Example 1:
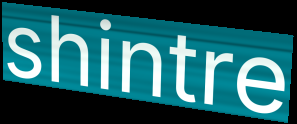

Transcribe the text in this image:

shintre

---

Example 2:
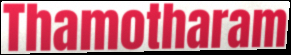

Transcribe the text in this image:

Thamotharam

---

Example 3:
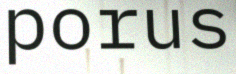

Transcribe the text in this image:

porus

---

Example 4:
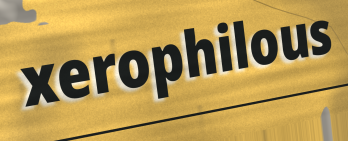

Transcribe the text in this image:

xerophilous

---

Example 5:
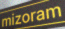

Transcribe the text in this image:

mizoram